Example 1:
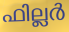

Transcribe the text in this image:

ഫില്ലർ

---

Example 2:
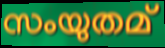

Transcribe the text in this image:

സംയുതമ്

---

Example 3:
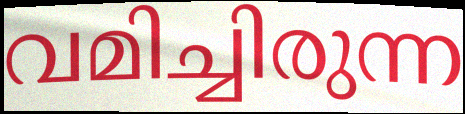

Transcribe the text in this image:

വമിച്ചിരുന്ന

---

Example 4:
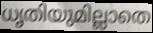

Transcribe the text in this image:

ധൃതിയുമില്ലാതെ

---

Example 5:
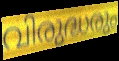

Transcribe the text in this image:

വിരുദ്ധരും